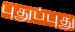
புதுப்புது